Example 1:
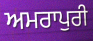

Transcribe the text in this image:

ਅਮਰਾਪੁਰੀ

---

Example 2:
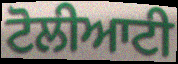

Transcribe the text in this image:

ਟੋਲੀਆਟੀ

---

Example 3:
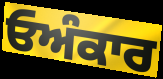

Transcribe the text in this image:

ਓਅੰਕਾਰ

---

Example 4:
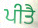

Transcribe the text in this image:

ਪੀਤੈ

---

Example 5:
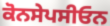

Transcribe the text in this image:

ਕੋਨਸੇਪਸੀਓਨ